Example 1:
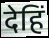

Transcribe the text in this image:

देहिं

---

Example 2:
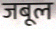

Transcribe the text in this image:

जबूल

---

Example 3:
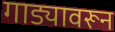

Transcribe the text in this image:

गाड्यावरून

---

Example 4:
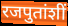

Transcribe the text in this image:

रजपुतांशीं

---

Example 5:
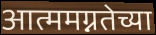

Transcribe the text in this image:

आत्ममग्नतेच्या